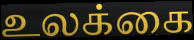
உலக்கை